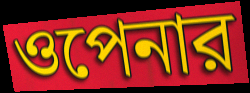
ওপেনার